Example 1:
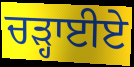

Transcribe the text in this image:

ਚੜ੍ਹਾਈਏ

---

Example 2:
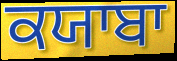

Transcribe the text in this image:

ਕਯਾਬਾ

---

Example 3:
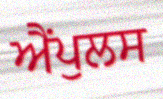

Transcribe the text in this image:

ਐਂਪੁਲਸ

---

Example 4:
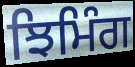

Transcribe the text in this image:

ਝਿਮਿੰਗ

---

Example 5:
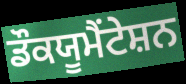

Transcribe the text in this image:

ਡੌਕਯੂਮੈਂਟੇਸ਼ਨ